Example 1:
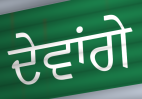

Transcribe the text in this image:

ਦੇਵਾਂਗੇ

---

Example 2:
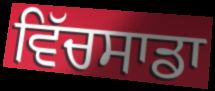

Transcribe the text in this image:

ਵਿੱਚਸਾਡਾ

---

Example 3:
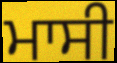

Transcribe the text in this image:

ਮਾਸੀ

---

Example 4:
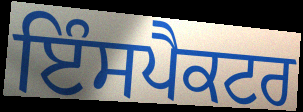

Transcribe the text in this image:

ਇੰਸਪੈਕਟਰ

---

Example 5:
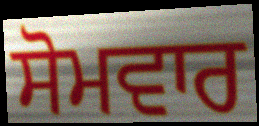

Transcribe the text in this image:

ਸੋਮਵਾਰ